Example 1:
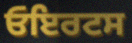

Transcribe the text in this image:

ਓਇਰਟਸ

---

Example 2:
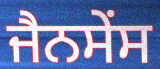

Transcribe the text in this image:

ਜੈਨਸੇਂਸ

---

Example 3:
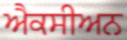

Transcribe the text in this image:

ਐਕਸੀਅਨ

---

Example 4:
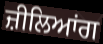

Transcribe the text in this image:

ਜ਼ੀਲਿਆਂਗ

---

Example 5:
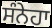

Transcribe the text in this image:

ਸੰਨੇਹਾ